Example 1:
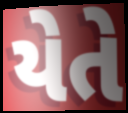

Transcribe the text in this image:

યેતે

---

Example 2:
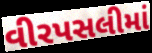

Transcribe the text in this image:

વીરપસલીમાં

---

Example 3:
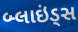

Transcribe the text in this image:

બ્લાઇંડ્સ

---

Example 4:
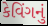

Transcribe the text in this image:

કેવિંગનું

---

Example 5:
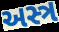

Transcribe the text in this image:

અસ્ત્ર